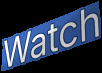
Watch